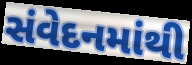
સંવેદનમાંથી